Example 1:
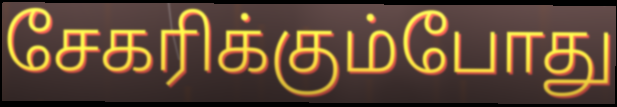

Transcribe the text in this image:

சேகரிக்கும்போது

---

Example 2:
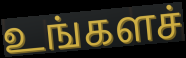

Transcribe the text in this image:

உங்களச்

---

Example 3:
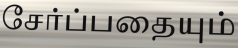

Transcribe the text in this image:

சேர்ப்பதையும்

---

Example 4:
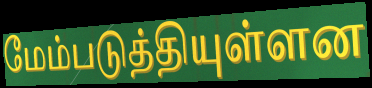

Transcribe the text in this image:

மேம்படுத்தியுள்ளன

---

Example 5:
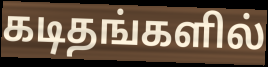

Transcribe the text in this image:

கடிதங்களில்